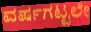
ವರ್ಷಗಟ್ಟಲೇ